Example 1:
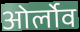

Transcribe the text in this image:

ओर्लोव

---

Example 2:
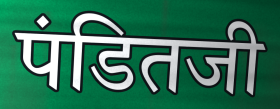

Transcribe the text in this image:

पंडितजी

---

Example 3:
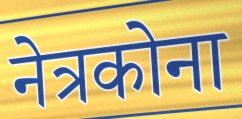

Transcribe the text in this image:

नेत्रकोना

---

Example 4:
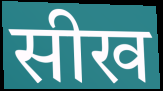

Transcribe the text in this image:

सीख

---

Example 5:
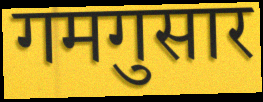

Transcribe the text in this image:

गमगुसार